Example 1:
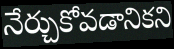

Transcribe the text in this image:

నేర్చుకోవడానికని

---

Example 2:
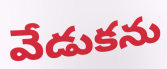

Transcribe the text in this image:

వేడుకను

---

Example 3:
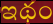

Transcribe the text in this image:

ఇథం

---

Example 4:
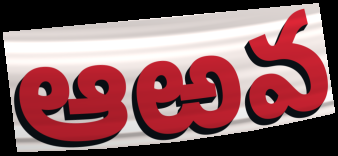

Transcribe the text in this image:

ఆఱవ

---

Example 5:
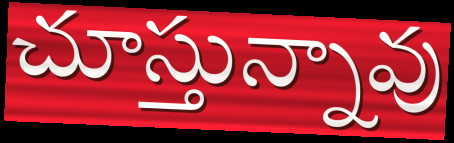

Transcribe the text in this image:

చూస్తున్నావు